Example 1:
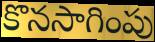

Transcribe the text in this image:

కొనసాగింపు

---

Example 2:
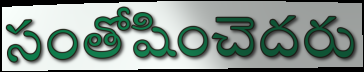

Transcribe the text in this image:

సంతోషించెదరు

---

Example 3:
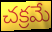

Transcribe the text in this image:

చక్రమే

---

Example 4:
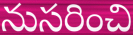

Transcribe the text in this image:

నుసరించి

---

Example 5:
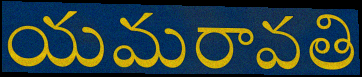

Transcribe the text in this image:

యమరావతి